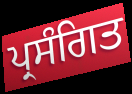
ਪ੍ਰਸੰਗਿਤ